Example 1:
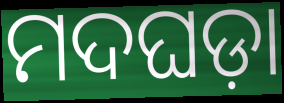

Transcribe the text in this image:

ମଦଘଡ଼ା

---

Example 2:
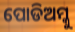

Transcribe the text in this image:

ପୋଡିଅମ୍କୁ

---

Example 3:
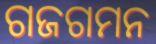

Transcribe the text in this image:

ଗଜଗମନ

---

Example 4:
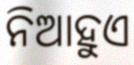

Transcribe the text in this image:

ନିଆହୁଏ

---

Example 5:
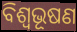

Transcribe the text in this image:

ବିଶ୍ବଭୂଷଣ